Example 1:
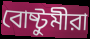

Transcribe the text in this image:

বোষ্টুমীরা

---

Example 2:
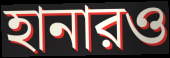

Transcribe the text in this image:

হানারও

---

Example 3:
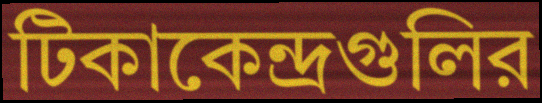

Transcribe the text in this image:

টিকাকেন্দ্রগুলির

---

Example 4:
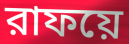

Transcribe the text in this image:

রাফয়ে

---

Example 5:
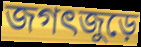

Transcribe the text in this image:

জগৎজুড়ে